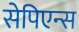
सेपिएन्स